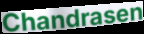
Chandrasen